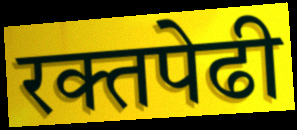
रक्तपेढी